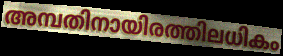
അമ്പതിനായിരത്തിലധികം